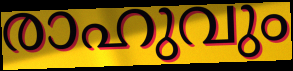
രാഹുവും